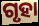
ଗୃହା